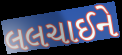
લલચાઈને